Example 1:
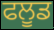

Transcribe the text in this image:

ਫਲੂਡ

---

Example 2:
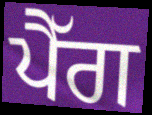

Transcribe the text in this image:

ਪੈੱਗ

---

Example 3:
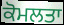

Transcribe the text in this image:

ਕੋਮਲਤਾ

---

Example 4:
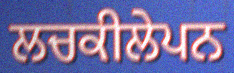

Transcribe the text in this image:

ਲਚਕੀਲੇਪਨ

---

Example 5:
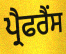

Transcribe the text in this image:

ਪ੍ਰੈਫਰੈਂਸ